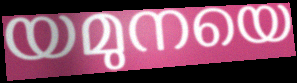
യമുനയെ